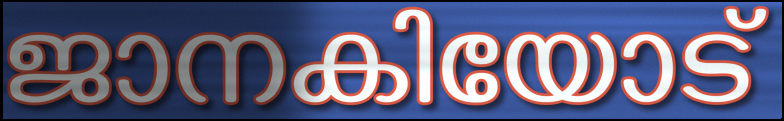
ജാനകിയോട്